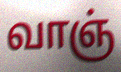
வாஞ்